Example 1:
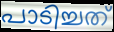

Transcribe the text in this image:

പാടിച്ചത്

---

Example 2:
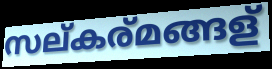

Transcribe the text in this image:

സല്കര്മങ്ങള്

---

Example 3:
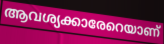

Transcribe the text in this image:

ആവശ്യക്കാരേറെയാണ്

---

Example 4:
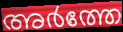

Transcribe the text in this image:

അർത്തേ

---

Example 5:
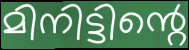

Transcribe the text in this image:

മിനിട്ടിന്റെ